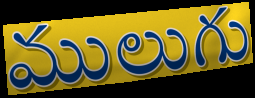
ములుగు